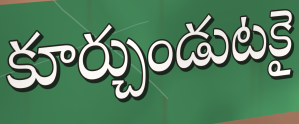
కూర్చుండుటకై